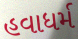
હવાધર્મ